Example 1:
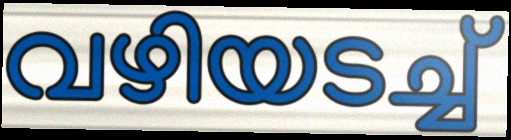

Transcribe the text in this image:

വഴിയടച്ച്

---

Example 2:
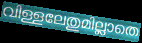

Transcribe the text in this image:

വിള്ളലേതുമില്ലാതെ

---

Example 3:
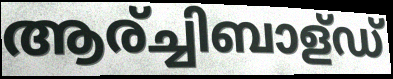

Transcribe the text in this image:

ആര്ച്ചിബാള്ഡ്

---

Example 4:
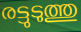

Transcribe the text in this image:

രട്ടുടുത്തു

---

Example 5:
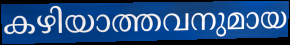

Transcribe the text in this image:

കഴിയാത്തവനുമായ